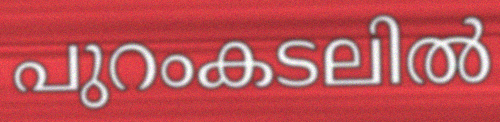
പുറംകടലിൽ